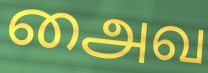
அைவ